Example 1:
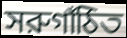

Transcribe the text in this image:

সৰুগাঁঠিত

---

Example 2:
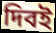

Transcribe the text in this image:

দিবই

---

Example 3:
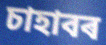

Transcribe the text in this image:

চাহাবৰ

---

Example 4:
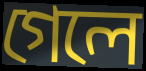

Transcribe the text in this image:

গেলে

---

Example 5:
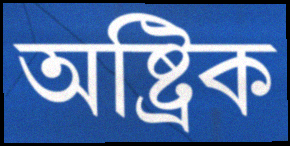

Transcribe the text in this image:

অষ্ট্ৰিক